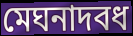
মেঘনাদবধ